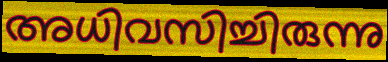
അധിവസിച്ചിരുന്നു